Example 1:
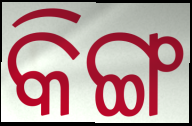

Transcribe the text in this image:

କିଙ୍ଗ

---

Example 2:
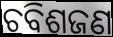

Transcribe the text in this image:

ଚବିଶଜଣ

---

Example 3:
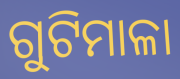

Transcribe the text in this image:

ଗୁଟିମାଳା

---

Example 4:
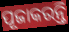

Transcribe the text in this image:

ପୂଜାକରନ୍ତି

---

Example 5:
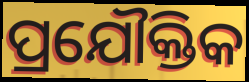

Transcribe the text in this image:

ପ୍ରଯୌକ୍ତିକ